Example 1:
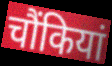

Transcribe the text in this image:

चौंकियां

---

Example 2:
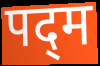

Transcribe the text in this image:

पद्‌म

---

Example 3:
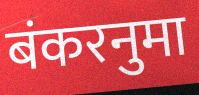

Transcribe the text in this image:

बंकरनुमा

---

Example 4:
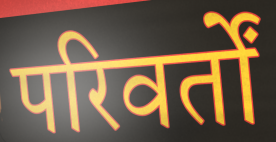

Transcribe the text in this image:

परिवर्तों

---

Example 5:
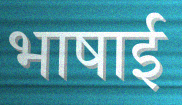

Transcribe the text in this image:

भाषाई